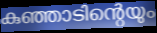
കുഞ്ഞാടിന്റെയും